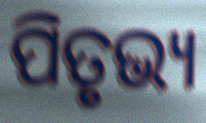
ପିତୃଭ୍ୟ